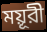
ময়ূরী